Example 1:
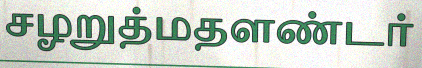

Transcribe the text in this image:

சழறுத்மதளண்டர்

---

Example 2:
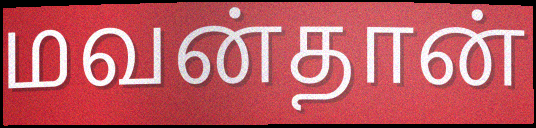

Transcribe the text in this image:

மவன்தான்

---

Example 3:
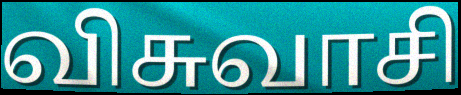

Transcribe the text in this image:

விசுவாசி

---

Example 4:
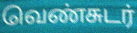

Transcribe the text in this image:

வெண்சுடர்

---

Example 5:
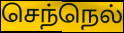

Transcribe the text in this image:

செந்நெல்